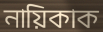
নায়িকাক